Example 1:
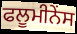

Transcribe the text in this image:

ਫਲੂਮੀਨੇਂਸ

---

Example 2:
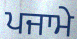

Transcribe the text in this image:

ਪਜਾਮੇ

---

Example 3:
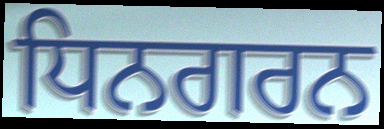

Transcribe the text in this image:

ਧਿਨਗਰਨ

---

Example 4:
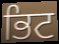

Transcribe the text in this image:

ਭਿਟ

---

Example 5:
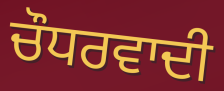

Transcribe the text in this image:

ਚੌਧਰਵਾਦੀ